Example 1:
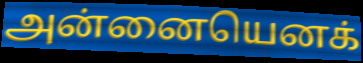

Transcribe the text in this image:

அன்னையெனக்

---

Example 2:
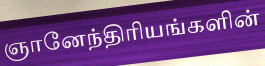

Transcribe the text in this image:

ஞானேந்திரியங்களின்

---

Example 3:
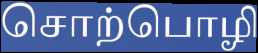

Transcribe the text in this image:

சொற்பொழி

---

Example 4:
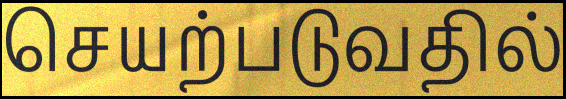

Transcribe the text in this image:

செயற்படுவதில்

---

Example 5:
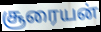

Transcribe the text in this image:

சூரையன்